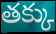
తక్కు